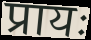
प्रायः